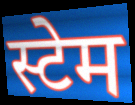
स्टेम